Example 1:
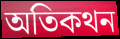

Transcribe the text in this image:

অতিকথন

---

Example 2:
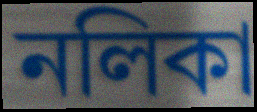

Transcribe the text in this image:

নলিকা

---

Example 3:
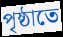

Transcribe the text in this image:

পৃষ্ঠাতে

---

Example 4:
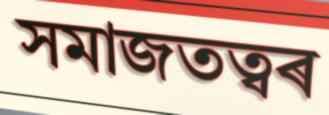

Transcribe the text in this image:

সমাজতত্বৰ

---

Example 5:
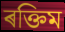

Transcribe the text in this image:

ৰক্তিম